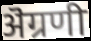
ऄग्रणी